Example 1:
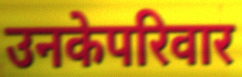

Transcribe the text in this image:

उनकेपरिवार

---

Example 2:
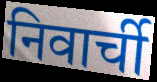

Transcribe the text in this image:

निवार्ची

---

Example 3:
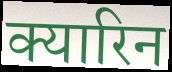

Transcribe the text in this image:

क्यारिन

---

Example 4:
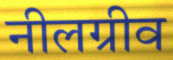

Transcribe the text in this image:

नीलग्रीव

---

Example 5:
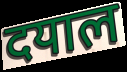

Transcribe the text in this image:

दयाल